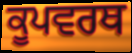
ਕੂਪਵਰਥ